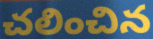
చలించిన